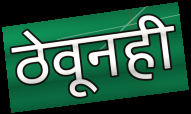
ठेवूनही